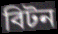
বিটন